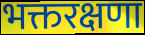
भक्तरक्षणा